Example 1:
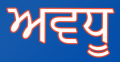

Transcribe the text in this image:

ਅਵਧੂ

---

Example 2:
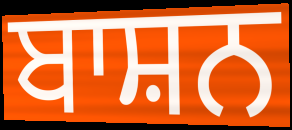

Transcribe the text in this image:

ਬਾਸ਼ਨ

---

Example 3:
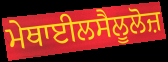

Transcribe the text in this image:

ਮੇਥਾਈਲਸੈਲੂਲੋਜ਼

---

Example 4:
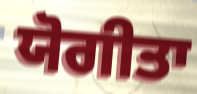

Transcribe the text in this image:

ਯੋਗੀਤਾ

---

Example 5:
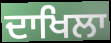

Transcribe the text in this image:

ਦਾਖਿਲਾ